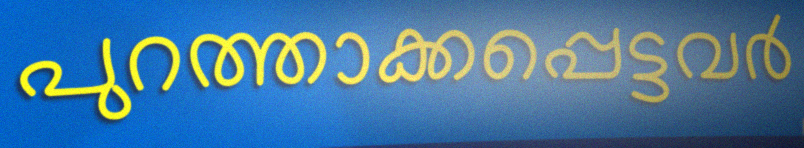
പുറത്താക്കപ്പെട്ടവർ